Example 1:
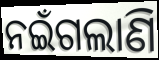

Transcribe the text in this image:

ନଇଁଗଲାଣି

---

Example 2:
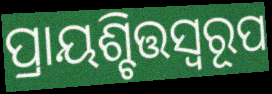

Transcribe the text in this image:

ପ୍ରାୟଶ୍ଚିତ୍ତସ୍ୱରୂପ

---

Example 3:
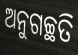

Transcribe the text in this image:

ଅନୁଗଚ୍ଛତି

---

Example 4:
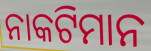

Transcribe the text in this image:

ନାକଟିମାନ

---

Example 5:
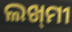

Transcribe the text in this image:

ଲଖ୍‌ମୀ